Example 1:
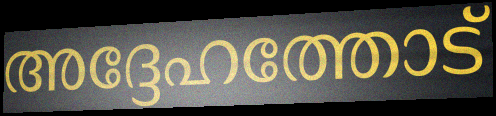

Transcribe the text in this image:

അദ്ദേഹത്തോട്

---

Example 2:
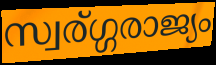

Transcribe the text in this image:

സ്വര്ഗ്ഗരാജ്യം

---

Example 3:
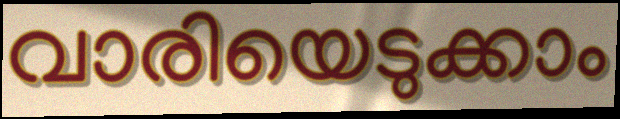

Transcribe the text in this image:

വാരിയെടുക്കാം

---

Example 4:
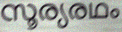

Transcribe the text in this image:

സൂര്യരഥം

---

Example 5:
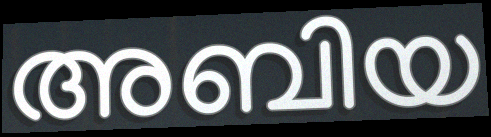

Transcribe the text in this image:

അബിയ